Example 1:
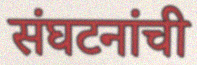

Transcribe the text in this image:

संघटनांची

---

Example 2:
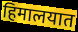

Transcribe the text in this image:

हिमालयात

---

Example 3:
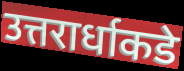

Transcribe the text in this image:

उत्तरार्धाकडे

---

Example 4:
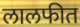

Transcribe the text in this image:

लालफीत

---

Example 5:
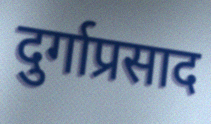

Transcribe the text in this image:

दुर्गाप्रसाद